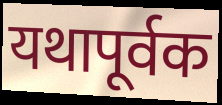
यथापूर्वक